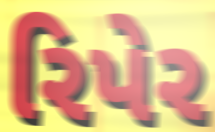
રિપેર